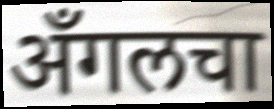
अँगलचा